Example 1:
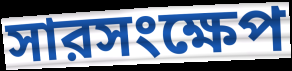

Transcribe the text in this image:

সারসংক্ষেপ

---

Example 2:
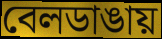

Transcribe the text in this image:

বেলডাঙায়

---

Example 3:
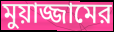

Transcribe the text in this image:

মুয়াজ্জামের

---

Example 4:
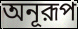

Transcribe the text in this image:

অনূরূপ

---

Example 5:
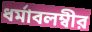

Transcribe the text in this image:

ধর্মাবলম্বীর